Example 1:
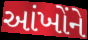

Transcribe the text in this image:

આંખોંને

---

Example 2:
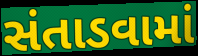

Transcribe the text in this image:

સંતાડવામાં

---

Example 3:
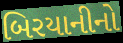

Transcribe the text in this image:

બિરયાનીનો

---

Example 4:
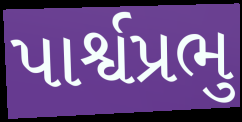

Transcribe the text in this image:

પાર્શ્વપ્રભુ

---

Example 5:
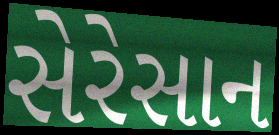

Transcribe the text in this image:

સેરેસાન